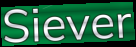
Siever